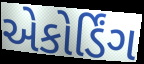
એકોર્ડિંગ